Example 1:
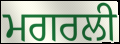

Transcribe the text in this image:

ਮਗਰਲੀ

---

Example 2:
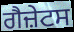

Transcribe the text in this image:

ਗੈਜ਼ੇਟਸ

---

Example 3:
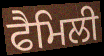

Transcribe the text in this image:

ਫੈਮਿਲੀ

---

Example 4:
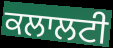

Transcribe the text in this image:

ਕਲਾਲਟੀ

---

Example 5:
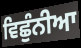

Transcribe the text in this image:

ਵਿਛੁੰਨੀਆ